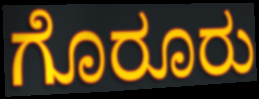
ಗೊರೂರು